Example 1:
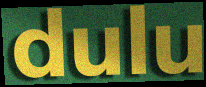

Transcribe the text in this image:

dulu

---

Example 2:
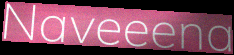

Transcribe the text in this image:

Naveeena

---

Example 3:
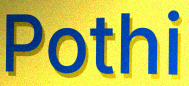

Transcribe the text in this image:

Pothi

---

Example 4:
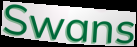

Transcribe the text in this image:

Swans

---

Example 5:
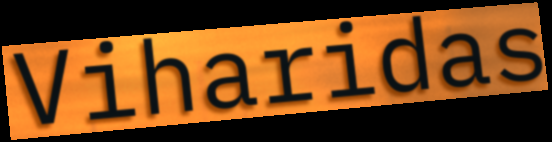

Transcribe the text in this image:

Viharidas